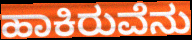
ಹಾಕಿರುವೆನು